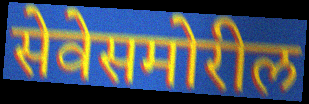
सेवेसमोरील